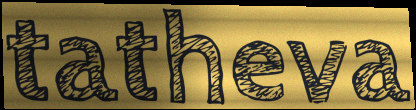
tatheva